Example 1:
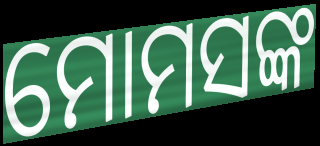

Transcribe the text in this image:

ମୋମସଙ୍କ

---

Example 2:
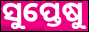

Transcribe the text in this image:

ସୁପ୍ତେଷୁ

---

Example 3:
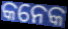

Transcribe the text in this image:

କନେକ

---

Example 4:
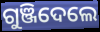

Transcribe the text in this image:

ଗୁଞ୍ଜିଦେଲେ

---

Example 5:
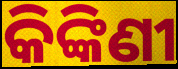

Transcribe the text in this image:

କିଙ୍କିଣୀ